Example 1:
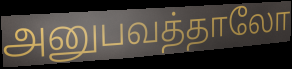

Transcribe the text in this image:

அனுபவத்தாலோ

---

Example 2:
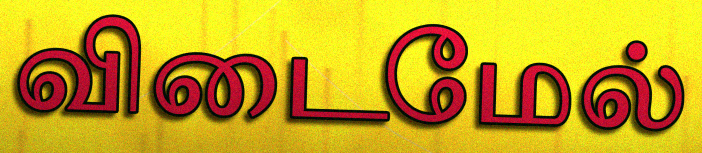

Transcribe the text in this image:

விடைமேல்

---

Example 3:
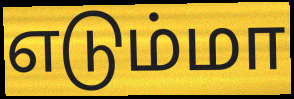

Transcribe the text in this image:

எடும்மா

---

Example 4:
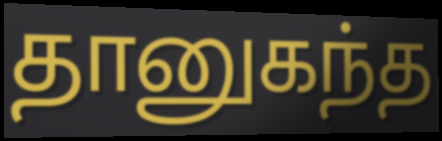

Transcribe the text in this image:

தானுகந்த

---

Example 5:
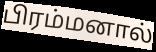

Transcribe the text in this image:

பிரம்மனால்